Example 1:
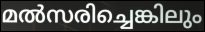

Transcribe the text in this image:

മൽസരിച്ചെങ്കിലും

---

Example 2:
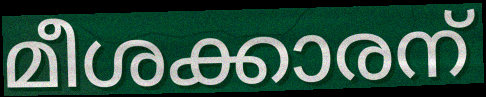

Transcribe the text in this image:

മീശക്കാരന്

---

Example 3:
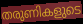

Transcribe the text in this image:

തരുണികളുടെ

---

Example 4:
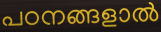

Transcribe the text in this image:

പഠനങ്ങളാൽ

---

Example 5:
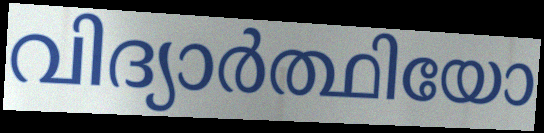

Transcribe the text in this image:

വിദ്യാർത്ഥിയോ